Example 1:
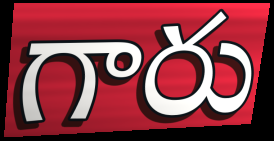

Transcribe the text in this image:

గారు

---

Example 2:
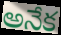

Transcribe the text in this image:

అనేక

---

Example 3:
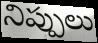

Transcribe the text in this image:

నిప్పులు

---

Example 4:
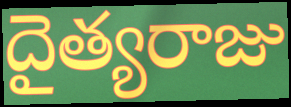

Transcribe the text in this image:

దైత్యరాజు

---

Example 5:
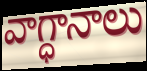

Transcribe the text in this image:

వాగ్ధానాలు